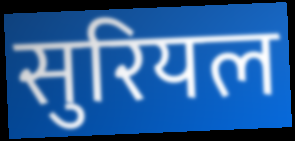
सुरियल